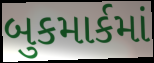
બુકમાર્કમાં